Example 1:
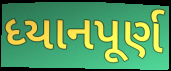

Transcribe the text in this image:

ધ્યાનપૂર્ણ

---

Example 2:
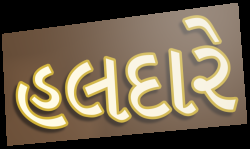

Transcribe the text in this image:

હલદારે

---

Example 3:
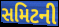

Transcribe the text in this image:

સમિટની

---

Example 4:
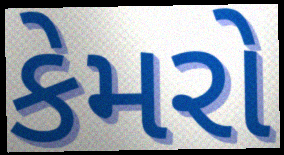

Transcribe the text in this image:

કેમરો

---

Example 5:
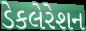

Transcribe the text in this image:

ડેકલેરેશન